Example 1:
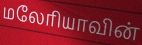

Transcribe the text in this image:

மலேரியாவின்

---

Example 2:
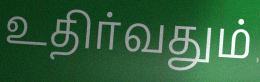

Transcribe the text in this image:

உதிர்வதும்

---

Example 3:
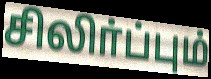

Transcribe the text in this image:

சிலிர்ப்பும்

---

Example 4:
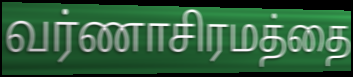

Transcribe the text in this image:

வர்ணாசிரமத்தை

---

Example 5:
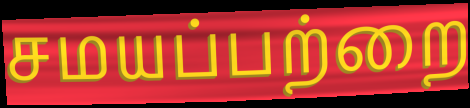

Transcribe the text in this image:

சமயப்பற்றை